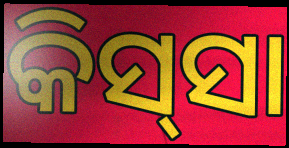
କିସ୍‍ସା